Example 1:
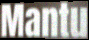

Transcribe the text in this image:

Mantu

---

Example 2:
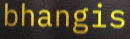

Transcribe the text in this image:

bhangis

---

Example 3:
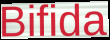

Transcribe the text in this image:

Bifida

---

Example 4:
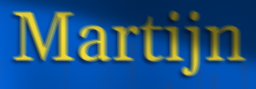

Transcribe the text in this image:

Martijn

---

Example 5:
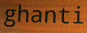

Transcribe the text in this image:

ghanti